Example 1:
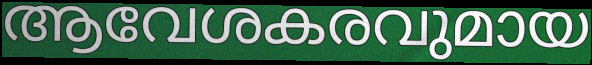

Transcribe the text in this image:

ആവേശകരവുമായ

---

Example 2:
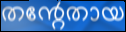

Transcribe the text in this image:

തന്റേതായ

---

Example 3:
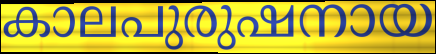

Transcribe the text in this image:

കാലപുരുഷനായ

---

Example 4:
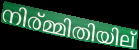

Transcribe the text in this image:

നിര്മ്മിതിയില്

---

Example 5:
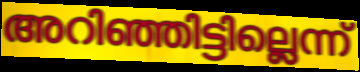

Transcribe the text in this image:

അറിഞ്ഞിട്ടില്ലെന്ന്